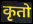
कृतो